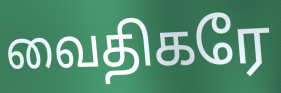
வைதிகரே